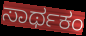
ಸಾರ್ಥಕಂ